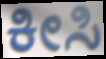
ಕೀಸಿ